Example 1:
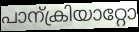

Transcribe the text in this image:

പാന്ക്രിയാറ്റോ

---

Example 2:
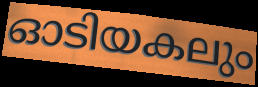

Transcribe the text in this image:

ഓടിയകലും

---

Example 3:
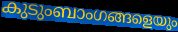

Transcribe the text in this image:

കുടുംബാംഗങ്ങളെയും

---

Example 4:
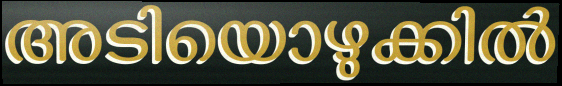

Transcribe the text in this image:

അടിയൊഴുക്കിൽ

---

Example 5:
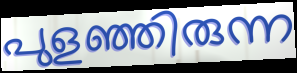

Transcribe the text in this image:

പുളഞ്ഞിരുന്ന